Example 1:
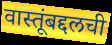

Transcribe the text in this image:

वास्तूंबद्दलची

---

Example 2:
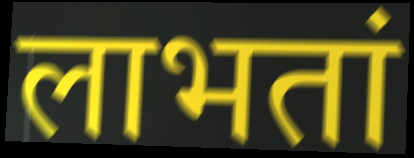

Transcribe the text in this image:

लाभतां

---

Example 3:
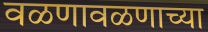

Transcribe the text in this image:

वळणावळणाच्या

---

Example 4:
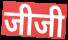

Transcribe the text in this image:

जीजी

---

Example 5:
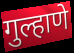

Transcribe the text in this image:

गुल्हाणे